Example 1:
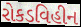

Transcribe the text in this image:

રોકડવિહીન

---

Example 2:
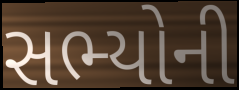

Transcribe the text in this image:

સભ્યોની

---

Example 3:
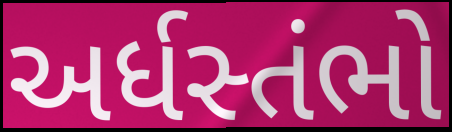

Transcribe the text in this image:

અર્ધસ્તંભો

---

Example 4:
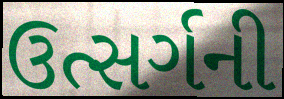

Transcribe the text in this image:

ઉત્સર્ગની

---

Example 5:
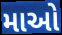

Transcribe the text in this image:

માઓ